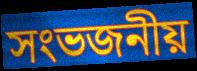
সংভজনীয়